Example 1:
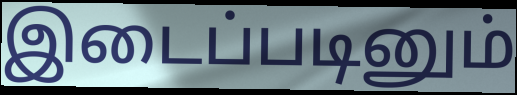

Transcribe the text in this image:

இடைப்படினும்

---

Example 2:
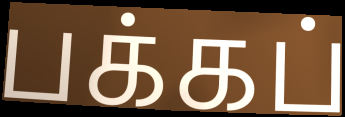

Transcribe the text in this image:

பக்கப்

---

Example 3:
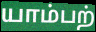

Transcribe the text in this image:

யாம்பற்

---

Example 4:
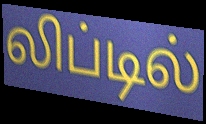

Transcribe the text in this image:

லிப்டில்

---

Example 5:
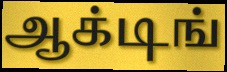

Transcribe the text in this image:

ஆக்டிங்